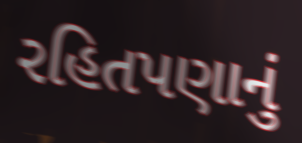
રહિતપણાનું